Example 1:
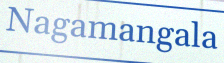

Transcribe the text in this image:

Nagamangala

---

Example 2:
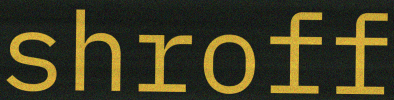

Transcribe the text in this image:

shroff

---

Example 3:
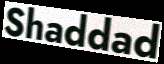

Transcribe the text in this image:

Shaddad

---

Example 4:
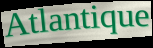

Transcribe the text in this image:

Atlantique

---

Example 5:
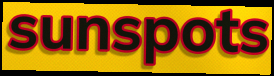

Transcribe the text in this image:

sunspots